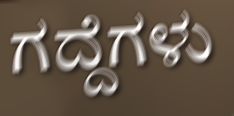
ಗದ್ದೆಗಳು